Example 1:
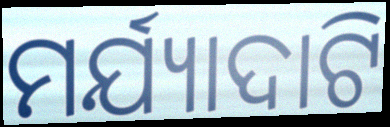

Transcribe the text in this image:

ମର୍ଯ୍ୟାଦାଟି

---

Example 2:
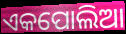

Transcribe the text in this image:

ଏକପୋଲିଆ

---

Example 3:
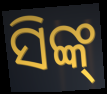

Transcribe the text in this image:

ସିଙ୍କ୍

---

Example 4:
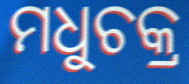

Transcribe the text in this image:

ମଧୁଚକ୍ର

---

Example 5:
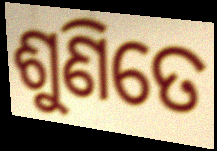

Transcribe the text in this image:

ଶୁଣିତେ